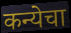
कन्येचा